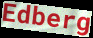
Edberg